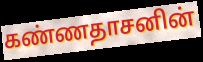
கண்ணதாசனின்